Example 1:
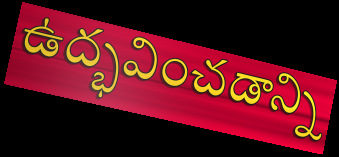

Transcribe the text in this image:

ఉద్భవించడాన్ని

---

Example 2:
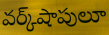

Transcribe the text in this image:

వర్క్‌షాపులూ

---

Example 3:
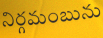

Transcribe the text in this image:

నిర్గమంబును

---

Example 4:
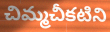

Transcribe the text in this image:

చిమ్మచీకటిని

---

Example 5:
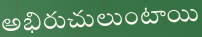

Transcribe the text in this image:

అభిరుచులుంటాయి